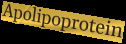
Apolipoprotein